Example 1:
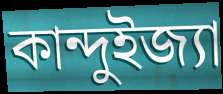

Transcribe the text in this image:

কান্দুইজ্যা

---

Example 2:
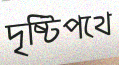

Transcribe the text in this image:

দৃষ্টিপথে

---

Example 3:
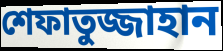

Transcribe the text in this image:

শেফাতুজ্জাহান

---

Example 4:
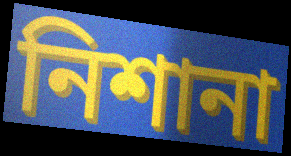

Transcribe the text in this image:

নিশানা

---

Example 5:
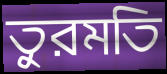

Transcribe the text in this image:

তুরমতি